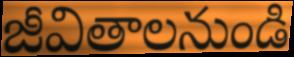
జీవితాలనుండి